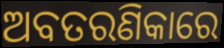
ଅବତରଣିକାରେ